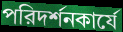
পরিদর্শনকার্যে